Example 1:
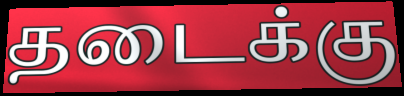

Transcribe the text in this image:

தடைக்கு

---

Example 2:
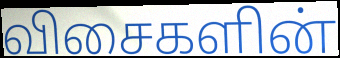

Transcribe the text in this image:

விசைகளின்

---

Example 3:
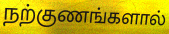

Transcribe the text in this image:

நற்குணங்களால்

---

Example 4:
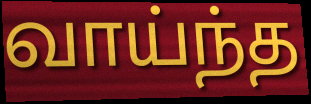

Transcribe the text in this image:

வாய்ந்த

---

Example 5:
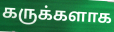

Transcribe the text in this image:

கருக்களாக